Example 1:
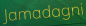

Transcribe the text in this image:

Jamadagni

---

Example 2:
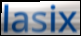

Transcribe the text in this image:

lasix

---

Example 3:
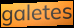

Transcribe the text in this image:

galetes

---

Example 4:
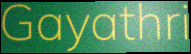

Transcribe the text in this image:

Gayathri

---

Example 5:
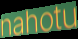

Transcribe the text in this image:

nahotu